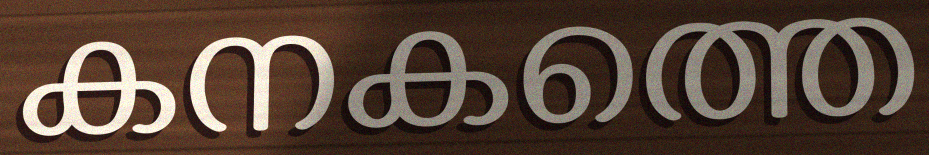
കനകത്തെ